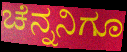
ಚೆನ್ನನಿಗೂ